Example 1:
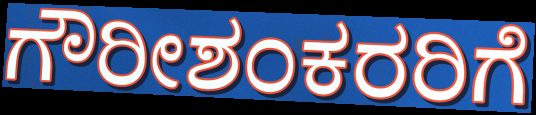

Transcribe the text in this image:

ಗೌರೀಶಂಕರರಿಗೆ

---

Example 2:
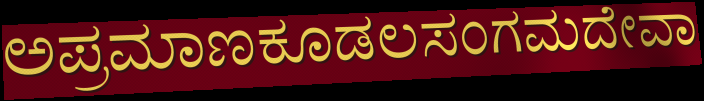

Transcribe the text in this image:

ಅಪ್ರಮಾಣಕೂಡಲಸಂಗಮದೇವಾ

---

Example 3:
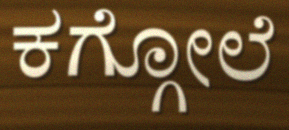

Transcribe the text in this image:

ಕಗ್ಗೋಲೆ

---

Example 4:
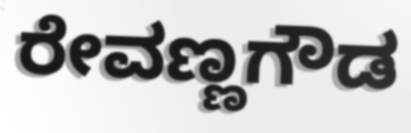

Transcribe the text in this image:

ರೇವಣ್ಣಗೌಡ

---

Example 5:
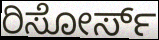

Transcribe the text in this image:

ರಿಸೋರ್ಸ್